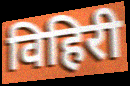
विहिरी